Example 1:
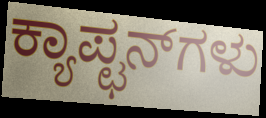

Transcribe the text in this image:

ಕ್ಯಾಪ್ಟನ್‌ಗಳು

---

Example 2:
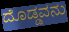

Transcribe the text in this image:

ದೊಡ್ಡವನು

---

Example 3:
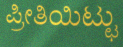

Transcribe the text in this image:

ಪ್ರೀತಿಯಿಟ್ಟು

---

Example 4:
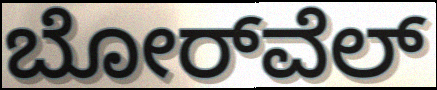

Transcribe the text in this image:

ಬೋರ್‌ವೆಲ್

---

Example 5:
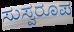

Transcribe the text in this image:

ಸುಸ್ವರೂಪ